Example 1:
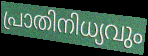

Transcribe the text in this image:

പ്രാതിനിധ്യവും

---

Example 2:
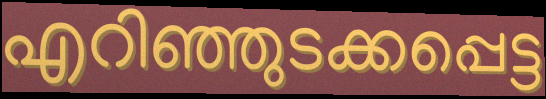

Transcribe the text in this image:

എറിഞ്ഞുടക്കപ്പെട്ട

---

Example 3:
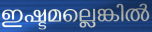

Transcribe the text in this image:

ഇഷ്ടമല്ലെങ്കിൽ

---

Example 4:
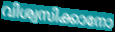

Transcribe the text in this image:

വിശ്വസിക്കാനോ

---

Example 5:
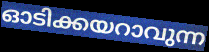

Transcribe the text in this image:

ഓടിക്കയറാവുന്ന